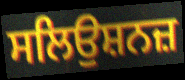
ਸਲਿਉਸ਼ਨਜ਼